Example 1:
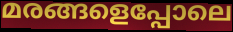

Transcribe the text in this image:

മരങ്ങളെപ്പോലെ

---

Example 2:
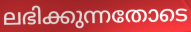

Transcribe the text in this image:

ലഭിക്കുന്നതോടെ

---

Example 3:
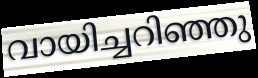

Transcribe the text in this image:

വായിച്ചറിഞ്ഞു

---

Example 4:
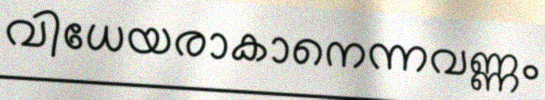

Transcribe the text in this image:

വിധേയരാകാനെന്നവണ്ണം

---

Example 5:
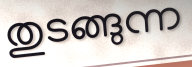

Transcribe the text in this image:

തുടങ്ങുന്ന